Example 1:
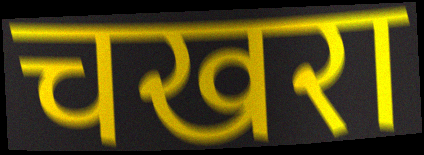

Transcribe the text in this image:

चखरा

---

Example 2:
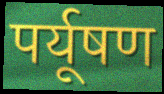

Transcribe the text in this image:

पर्यूषण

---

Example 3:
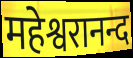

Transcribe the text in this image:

महेश्वरानन्द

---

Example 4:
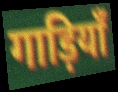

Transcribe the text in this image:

गाड़ियाँ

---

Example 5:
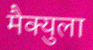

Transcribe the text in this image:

मैक्युला